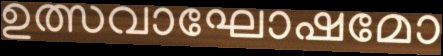
ഉത്സവാഘോഷമോ